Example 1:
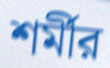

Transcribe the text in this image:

শর্মীর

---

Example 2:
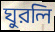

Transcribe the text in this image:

ঘুরলি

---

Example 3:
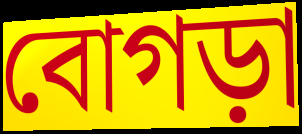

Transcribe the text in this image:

বোগড়া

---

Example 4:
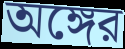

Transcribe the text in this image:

অঙ্গের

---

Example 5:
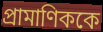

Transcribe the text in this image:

প্রামাণিককে